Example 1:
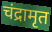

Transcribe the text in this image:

चंद्रामृत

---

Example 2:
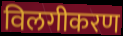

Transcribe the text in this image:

विलगीकरण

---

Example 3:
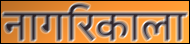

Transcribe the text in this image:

नागरिकाला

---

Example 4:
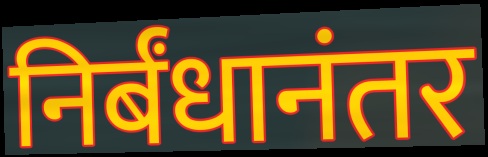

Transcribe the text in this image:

निर्बंधानंतर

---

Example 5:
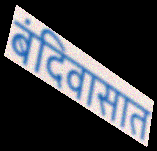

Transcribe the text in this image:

बंदिवासात